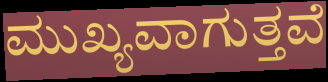
ಮುಖ್ಯವಾಗುತ್ತವೆ